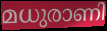
മധുരാണി